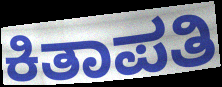
ಕಿತಾಪತಿ